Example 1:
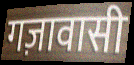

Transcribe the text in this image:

गज़ावासी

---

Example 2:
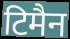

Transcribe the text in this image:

टिमैन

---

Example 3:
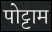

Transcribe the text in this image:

पोट्टाम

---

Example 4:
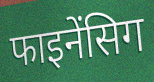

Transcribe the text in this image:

फाइनेंसिग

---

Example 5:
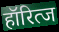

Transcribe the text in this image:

हॉरित्ज